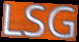
LSG